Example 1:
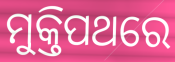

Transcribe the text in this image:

ମୁକ୍ତିପଥରେ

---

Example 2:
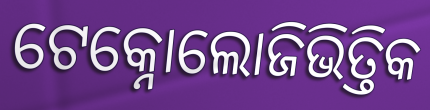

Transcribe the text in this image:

ଟେକ୍ନୋଲୋଜିଭିତ୍ତିକ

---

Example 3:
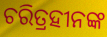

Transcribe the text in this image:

ଚରିତ୍ରହୀନଙ୍କ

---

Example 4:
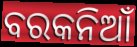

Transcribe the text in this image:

ବରକନିଆଁ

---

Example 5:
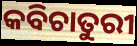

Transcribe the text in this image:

କବିଚାତୁରୀ